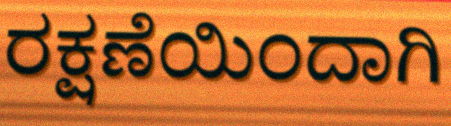
ರಕ್ಷಣೆಯಿಂದಾಗಿ